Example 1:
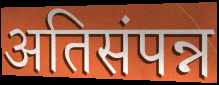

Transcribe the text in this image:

अतिसंपन्न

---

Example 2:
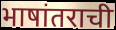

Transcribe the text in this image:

भाषांतराची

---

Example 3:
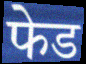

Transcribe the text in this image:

फेड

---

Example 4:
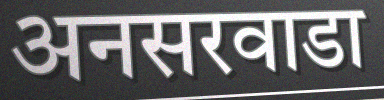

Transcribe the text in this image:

अनसरवाडा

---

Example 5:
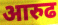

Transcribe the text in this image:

आरुढ